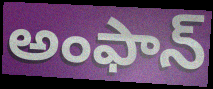
అంఫాన్